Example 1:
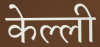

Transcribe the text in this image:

केल्ली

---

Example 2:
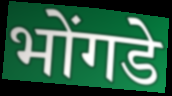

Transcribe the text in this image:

भोंगडे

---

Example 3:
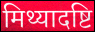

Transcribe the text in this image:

मिथ्यादष्टि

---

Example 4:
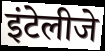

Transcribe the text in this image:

इंटेलीजे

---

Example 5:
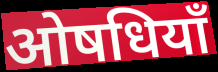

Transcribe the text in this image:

ओषधियाँ